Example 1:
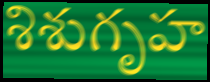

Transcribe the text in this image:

శిశుగృహ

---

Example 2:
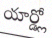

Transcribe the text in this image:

యార్డ్లో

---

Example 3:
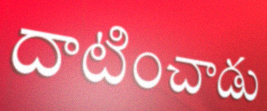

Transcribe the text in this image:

దాటించాడు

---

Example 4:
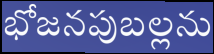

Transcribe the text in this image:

భోజనపుబల్లను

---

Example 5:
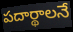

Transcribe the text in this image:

పదార్థాలనే